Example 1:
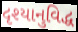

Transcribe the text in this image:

દૃશ્યાનુવિદ્ધ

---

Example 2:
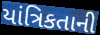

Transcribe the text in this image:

યાંત્રિકતાની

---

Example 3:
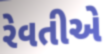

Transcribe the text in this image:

રેવતીએ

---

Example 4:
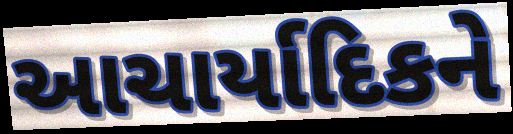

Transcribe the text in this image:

આચાર્યાદિકને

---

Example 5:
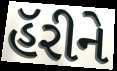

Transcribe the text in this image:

હૅરીને